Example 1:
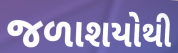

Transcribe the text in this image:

જળાશયોથી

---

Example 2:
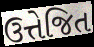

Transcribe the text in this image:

ઉત્તેજિત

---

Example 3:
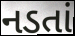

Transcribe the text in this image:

નડતાં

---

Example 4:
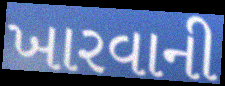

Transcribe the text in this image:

ખારવાની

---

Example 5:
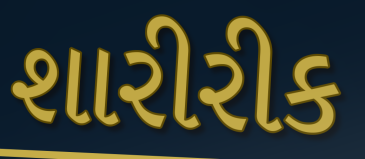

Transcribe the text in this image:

શારીરીક